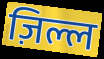
ज़िल्ल